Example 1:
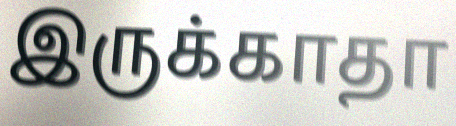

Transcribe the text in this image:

இருக்காதா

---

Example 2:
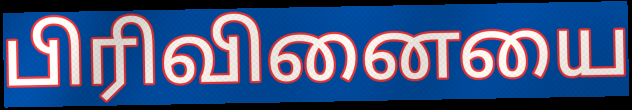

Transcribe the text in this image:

பிரிவினையை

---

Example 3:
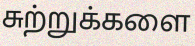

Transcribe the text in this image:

சுற்றுக்களை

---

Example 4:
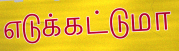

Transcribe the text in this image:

எடுக்கட்டுமா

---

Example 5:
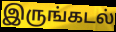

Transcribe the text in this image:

இருங்கடல்